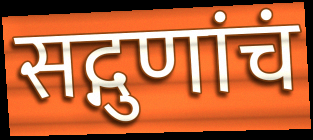
सद्गुणांचं